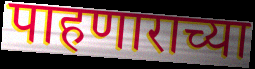
पाहणाराच्या